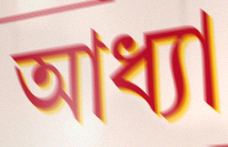
আধ্যা